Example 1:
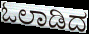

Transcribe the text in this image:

ಓಲಾಡಿದ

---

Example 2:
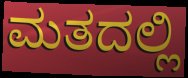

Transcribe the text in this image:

ಮತದಲ್ಲಿ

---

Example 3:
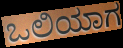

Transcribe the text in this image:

ಒಲಿಯಾಗ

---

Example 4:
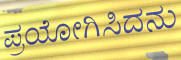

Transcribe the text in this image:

ಪ್ರಯೋಗಿಸಿದನು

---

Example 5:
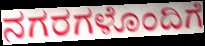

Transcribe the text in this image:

ನಗರಗಳೊಂದಿಗೆ